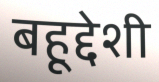
बहूद्देशी